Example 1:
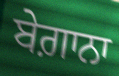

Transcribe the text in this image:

ਬੇਗ਼ਾਨਾ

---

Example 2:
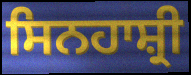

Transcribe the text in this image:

ਸਿਨਹਾਸ਼੍ਰੀ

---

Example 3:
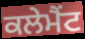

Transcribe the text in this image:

ਕਲੇਮੈਂਟ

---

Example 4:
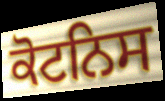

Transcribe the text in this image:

ਕੋਟਨਿਸ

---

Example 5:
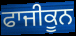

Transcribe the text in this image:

ਫਾਜੀਕੂਨ